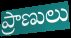
ప్రాణులు